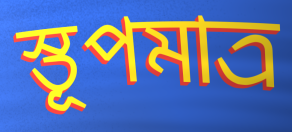
স্তূপমাত্র